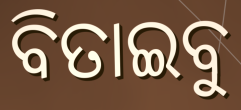
ବିତାଇବୁ